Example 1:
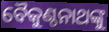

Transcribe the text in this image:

ବୈକୁଣ୍ଠନାଥଙ୍କୁ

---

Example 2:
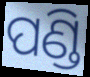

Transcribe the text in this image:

ପଣ୍ଡି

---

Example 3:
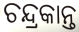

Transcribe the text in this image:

ଚନ୍ଦ୍ରକାନ୍ତ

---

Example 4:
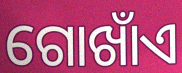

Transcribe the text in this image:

ଗୋଖାଁଏ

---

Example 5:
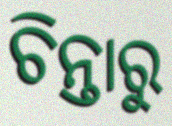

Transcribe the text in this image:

ଚିନ୍ତାରୁ